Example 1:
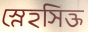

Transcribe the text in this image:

স্নেহসিক্ত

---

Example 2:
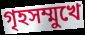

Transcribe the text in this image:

গৃহসম্মুখে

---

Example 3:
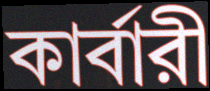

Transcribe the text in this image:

কার্বারী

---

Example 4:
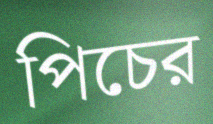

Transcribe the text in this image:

পিচের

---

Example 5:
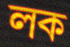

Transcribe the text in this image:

লক